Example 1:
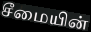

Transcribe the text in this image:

சீமையின்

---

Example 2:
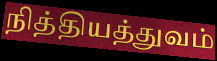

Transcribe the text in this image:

நித்தியத்துவம்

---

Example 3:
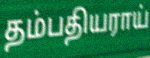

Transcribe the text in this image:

தம்பதியராய்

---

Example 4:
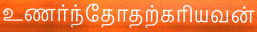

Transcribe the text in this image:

உணர்ந்தோதற்கரியவன்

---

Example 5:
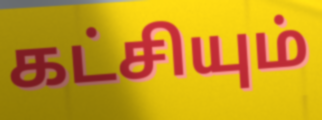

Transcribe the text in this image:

கட்சியும்